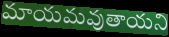
మాయమవుతాయని